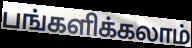
பங்களிக்கலாம்